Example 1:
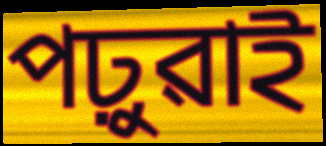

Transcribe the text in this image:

পঢ়ুৱাই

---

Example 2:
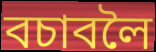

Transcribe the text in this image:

বচাবলৈ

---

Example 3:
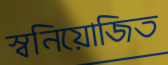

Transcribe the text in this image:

স্বনিয়োজিত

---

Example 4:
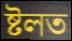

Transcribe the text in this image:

ষ্টলত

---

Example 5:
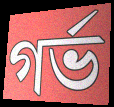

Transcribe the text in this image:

গৰ্ভ